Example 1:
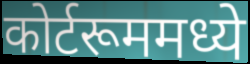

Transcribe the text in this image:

कोर्टरूममध्ये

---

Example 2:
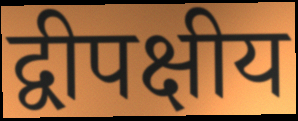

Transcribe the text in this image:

द्वीपक्षीय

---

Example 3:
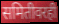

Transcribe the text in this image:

समितीवरही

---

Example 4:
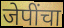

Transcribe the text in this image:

जेपींचा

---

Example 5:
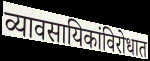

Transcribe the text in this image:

व्यावसायिकांविरोधात